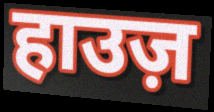
हाउज़